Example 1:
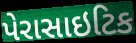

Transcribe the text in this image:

પેરાસાઇટિક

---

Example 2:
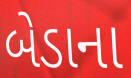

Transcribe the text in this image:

બેડાના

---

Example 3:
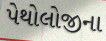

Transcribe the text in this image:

પેથોલોજીના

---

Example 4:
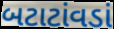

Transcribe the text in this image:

બટાટાંવડાં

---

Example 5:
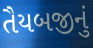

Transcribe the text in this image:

તૈયબજીનું